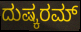
ದುಷ್ಕರಮ್